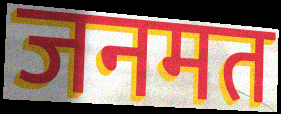
जनमत